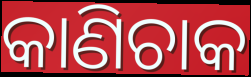
କାଣିଚାକ